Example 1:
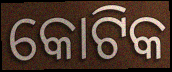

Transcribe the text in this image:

କୋଟିକ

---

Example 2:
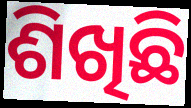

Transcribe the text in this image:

ଶିଖିଛି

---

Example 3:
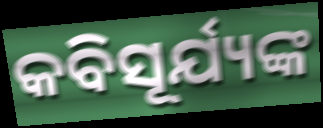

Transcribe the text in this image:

କବିସୂର୍ଯ୍ୟଙ୍କ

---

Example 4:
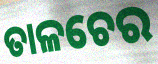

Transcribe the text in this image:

ତାଳଚେର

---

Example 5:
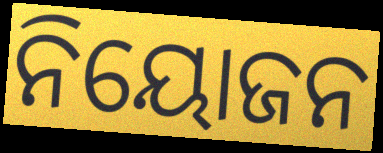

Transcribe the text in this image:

ନିୟୋଜନ